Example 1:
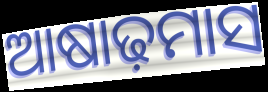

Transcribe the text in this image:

ଆଷାଢ଼ମାସ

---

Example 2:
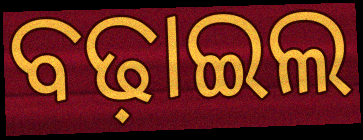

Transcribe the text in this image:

ବଢ଼ାଇଲ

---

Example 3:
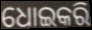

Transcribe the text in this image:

ଧୋଇକରି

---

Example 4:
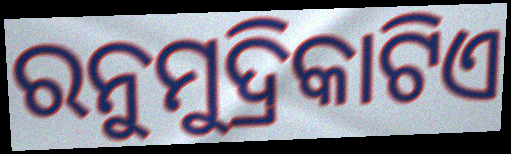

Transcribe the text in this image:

ରନୁମୁଦ୍ରିକାଟିଏ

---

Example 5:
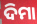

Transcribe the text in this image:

ଦିମା